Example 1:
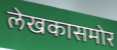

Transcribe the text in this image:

लेखकासमोर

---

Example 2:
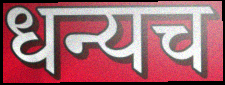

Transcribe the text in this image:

धन्यच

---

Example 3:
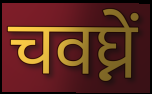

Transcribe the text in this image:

चवघ्नें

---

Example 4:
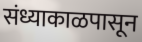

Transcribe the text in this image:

संध्याकाळपासून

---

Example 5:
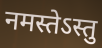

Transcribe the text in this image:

नमस्तेऽस्तु